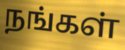
நங்கள்